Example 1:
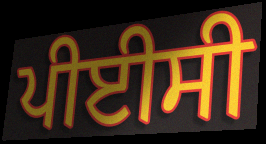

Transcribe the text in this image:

ਪੀਈਸੀ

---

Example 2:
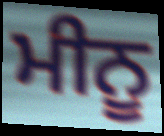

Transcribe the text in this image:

ਮੀਨੂ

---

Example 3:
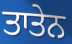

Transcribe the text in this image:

ਤਾਤੇਨ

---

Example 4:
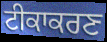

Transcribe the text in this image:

ਟੀਕਾਕਰਣ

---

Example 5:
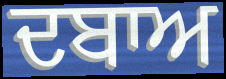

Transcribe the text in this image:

ਦਬਾਅ